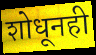
शोधूनही